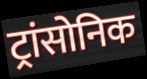
ट्रांसोनिक